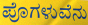
ಪೊಗಳುವೆನು